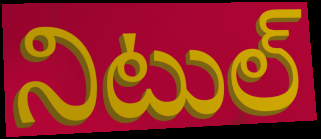
నిటుల్